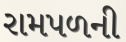
રામપળની